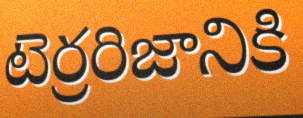
టెర్రరిజానికి